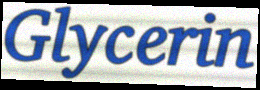
Glycerin